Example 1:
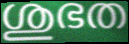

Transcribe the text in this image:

ശുഭത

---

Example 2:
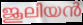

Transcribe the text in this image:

ജൂലിയൻ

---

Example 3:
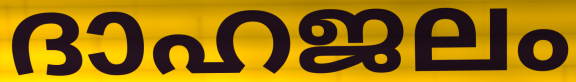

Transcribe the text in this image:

ദാഹജലം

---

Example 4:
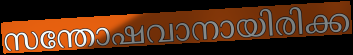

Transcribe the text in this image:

സന്തോഷവാനായിരിക്ക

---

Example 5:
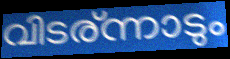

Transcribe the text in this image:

വിടര്ന്നാടും